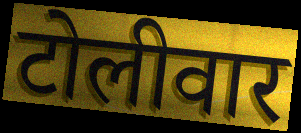
टोलीवार